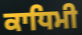
ਕਾਧਿਮੀ